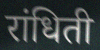
रांधिती